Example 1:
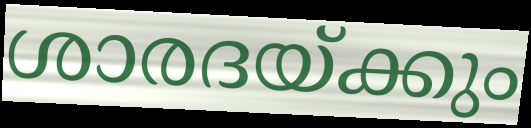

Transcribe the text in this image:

ശാരദയ്ക്കും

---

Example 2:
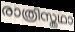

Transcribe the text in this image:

രാത്രിസ്തഥാ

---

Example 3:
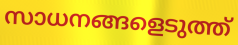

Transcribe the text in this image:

സാധനങ്ങളെടുത്ത്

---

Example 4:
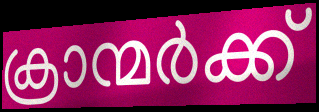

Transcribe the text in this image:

ക്രാന്മർക്ക്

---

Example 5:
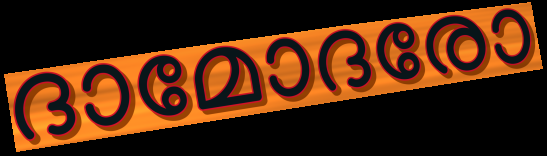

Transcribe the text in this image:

ദാമോദരോ